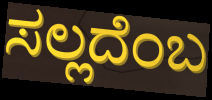
ಸಲ್ಲದೆಂಬ